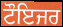
ਟੌਇਜਰ